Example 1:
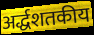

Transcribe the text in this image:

अर्द्धशतकीय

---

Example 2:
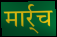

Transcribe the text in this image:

मार्र्च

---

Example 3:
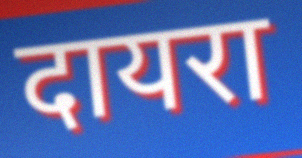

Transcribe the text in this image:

दायरा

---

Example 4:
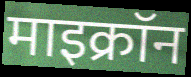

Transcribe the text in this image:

माइक्रॉन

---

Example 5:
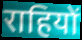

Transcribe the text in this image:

राहियों